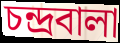
চন্দ্রবালা